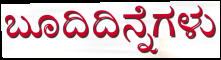
ಬೂದಿದಿನ್ನೆಗಳು